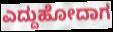
ಎದ್ದುಹೋದಾಗ